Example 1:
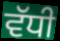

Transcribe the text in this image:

ਵੱਧੀ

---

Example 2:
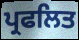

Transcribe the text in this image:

ਪ੍ਰਫਲਿਤ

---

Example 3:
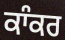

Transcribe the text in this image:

ਕਾੰਕਰ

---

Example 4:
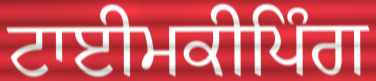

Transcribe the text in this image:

ਟਾਈਮਕੀਪਿੰਗ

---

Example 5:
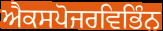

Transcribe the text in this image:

ਐਕਸਪੋਜਰਵਿਭਿੰਨ